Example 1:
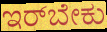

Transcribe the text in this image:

ಇರ್‌ಬೇಕು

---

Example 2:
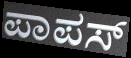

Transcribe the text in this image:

ಪಾಪಸ್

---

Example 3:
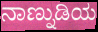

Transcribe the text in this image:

ನಾಣ್ನುಡಿಯ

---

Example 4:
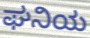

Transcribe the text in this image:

ಘನಿಯ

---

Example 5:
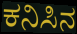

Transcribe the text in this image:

ಕನಿಸಿನ